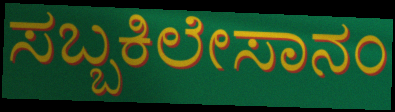
ಸಬ್ಬಕಿಲೇಸಾನಂ